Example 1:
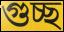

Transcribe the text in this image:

গুচ্ছ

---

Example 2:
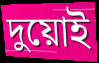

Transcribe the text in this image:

দুয়োই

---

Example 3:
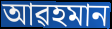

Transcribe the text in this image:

আৱহমান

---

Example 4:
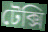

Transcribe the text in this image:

টেক্সি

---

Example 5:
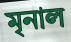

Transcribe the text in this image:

মৃনাল